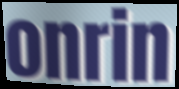
onrin